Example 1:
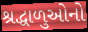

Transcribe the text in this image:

શ્રદ્ધાળુઓનો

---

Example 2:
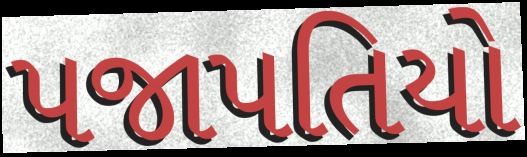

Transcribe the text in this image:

પજાપતિયો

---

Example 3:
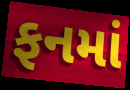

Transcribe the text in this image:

ફનમાં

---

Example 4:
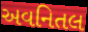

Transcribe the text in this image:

અવનિતલ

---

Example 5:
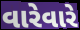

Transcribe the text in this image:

વારેવારે